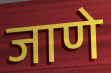
जाणे